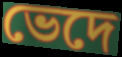
ভেদে